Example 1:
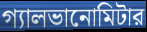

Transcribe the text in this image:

গ্যালভানোমিটার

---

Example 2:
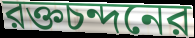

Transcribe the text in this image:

রক্তচন্দনের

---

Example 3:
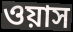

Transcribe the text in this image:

ওয়াস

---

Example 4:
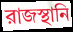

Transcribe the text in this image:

রাজস্থানি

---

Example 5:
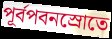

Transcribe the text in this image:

পূর্বপবনস্রোতে